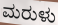
ಮರುಳು